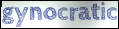
gynocratic